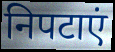
निपटाएं